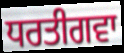
ਧਰਤੀਗਵਾ